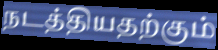
நடத்தியதற்கும்